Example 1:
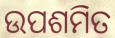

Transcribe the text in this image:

ଉପଶମିତ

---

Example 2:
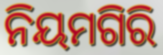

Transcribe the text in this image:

ନିୟମଗିରି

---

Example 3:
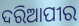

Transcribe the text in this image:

ଦରିଆପୀର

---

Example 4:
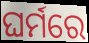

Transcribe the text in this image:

ଘର୍ମରେ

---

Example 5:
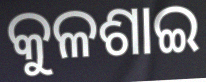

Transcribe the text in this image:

କୁଳଶାଇ